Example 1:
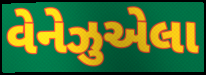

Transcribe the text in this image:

વેનેઝુએલા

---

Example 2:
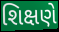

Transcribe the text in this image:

શિક્ષણે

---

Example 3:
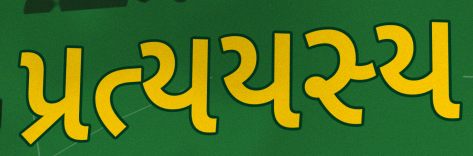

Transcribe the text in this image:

પ્રત્યયસ્ય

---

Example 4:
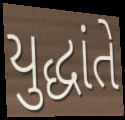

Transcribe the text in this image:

યુદ્ધાંતે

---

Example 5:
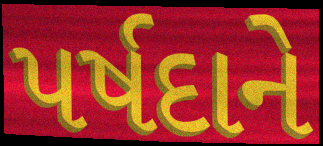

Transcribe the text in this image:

પર્ષદાને